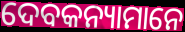
ଦେବକନ୍ୟାମାନେ